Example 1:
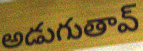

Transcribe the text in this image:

అడుగుతావ్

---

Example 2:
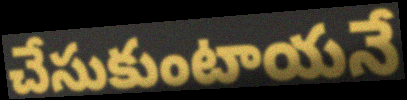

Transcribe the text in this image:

చేసుకుంటాయనే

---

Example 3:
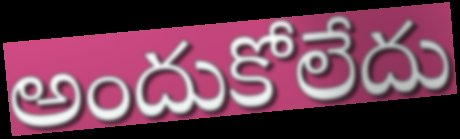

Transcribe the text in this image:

అందుకోలేదు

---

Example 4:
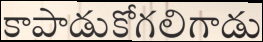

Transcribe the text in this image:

కాపాడుకోగలిగాడు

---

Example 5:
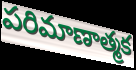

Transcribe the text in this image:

పరిమాణాత్మక